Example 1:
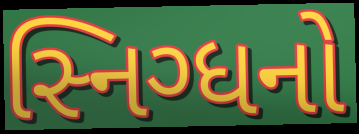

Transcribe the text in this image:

સ્નિગ્ધનો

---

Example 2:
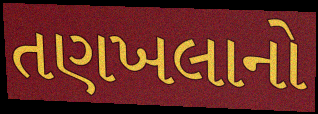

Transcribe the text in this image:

તણખલાનો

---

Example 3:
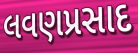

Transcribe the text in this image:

લવણપ્રસાદ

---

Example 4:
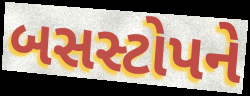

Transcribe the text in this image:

બસસ્ટોપને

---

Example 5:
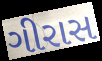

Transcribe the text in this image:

ગીરાસ